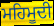
ਮਹਿਮੂਦੀ